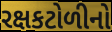
રક્ષકટોળીનો